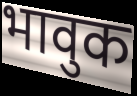
भावुक